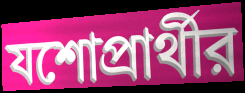
যশোপ্রার্থীর